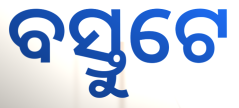
ବସ୍ତୁଟେ